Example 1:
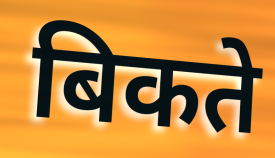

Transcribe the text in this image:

बिकते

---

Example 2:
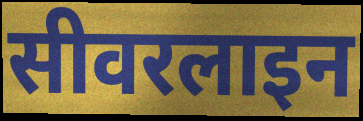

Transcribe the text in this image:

सीवरलाइन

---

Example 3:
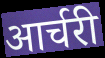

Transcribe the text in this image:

आर्चरी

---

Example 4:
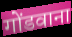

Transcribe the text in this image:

गोंडवाना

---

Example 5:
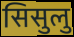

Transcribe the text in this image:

सिसुलु